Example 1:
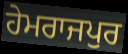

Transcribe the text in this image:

ਹੇਮਰਾਜਪੁਰ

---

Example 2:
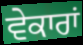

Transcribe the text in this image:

ਵੇਕਾਰਾਂ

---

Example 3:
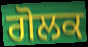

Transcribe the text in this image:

ਗੋਲਕ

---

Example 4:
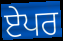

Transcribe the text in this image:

ਏਪਰ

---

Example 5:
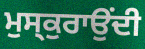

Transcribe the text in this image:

ਮੁਸ੍ਕੁਰਾਉਂਦੀ